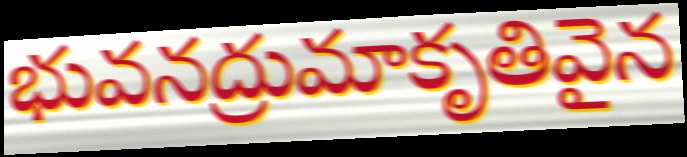
భువనద్రుమాకృతివైన